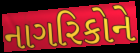
નાગરિકોને